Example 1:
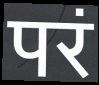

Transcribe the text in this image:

परं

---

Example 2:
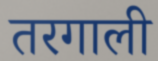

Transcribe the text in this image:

तरगाली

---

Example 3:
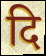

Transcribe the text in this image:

दि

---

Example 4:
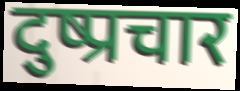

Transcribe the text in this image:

दुष्‍प्रचार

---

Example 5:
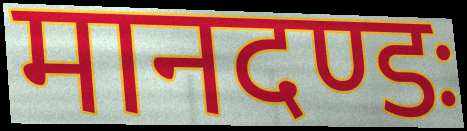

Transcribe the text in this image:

मानदण्डः